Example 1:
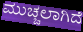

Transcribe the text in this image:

ಮುಚ್ಚಲಾಗಿದೆ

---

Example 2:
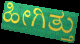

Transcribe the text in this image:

ಹೀಗಿತ್ತು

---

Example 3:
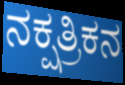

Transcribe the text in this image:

ನಕ್ಷತ್ರಿಕನ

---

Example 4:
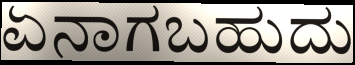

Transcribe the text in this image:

ಏನಾಗಬಹುದು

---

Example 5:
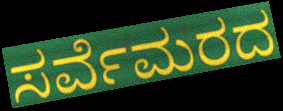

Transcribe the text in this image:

ಸರ್ವೆಮರದ